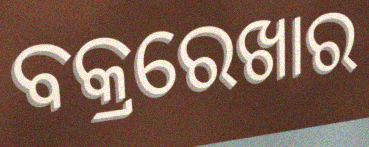
ବକ୍ରରେଖାର